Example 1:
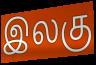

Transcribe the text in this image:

இலகு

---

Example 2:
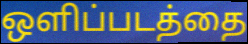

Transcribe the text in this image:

ஒளிப்படத்தை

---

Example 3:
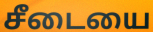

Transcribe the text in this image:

சீடையை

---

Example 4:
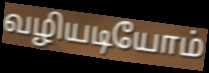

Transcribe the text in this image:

வழியடியோம்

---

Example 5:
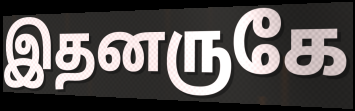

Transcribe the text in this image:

இதனருகே